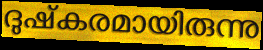
ദുഷ്‌കരമായിരുന്നു